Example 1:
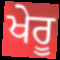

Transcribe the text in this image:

ਖੇਰੂ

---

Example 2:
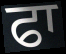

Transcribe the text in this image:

ਫਾ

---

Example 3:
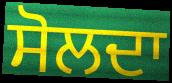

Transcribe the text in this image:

ਸੋਲਦਾ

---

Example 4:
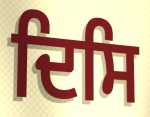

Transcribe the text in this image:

ਦਿਸਿ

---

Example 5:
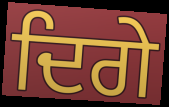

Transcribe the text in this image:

ਦਿਗੇ